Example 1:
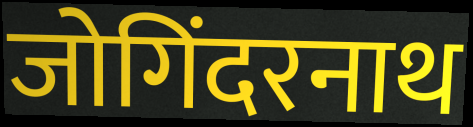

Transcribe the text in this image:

जोगिंदरनाथ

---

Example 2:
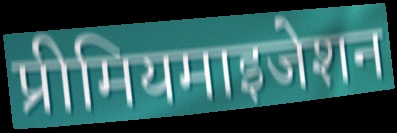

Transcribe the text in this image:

प्रीमियमाइजेशन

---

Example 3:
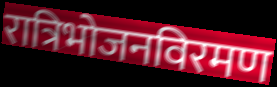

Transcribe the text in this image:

रात्रिभोजनविरमण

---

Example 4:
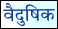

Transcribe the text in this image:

वैदुषिक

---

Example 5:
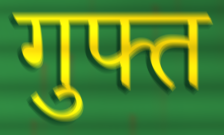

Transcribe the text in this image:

गुफ्त